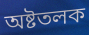
অষ্টতলক